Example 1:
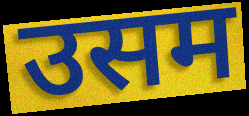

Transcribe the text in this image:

उसम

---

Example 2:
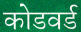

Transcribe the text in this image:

कोडवर्ड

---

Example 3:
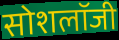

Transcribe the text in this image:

सोशलॉजी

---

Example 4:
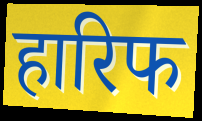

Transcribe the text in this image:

हारिफ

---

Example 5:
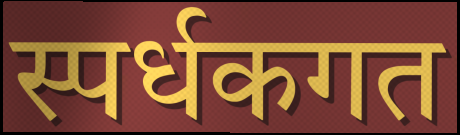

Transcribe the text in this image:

स्पर्धकगत